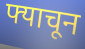
फ्याचून